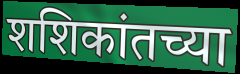
शशिकांतच्या